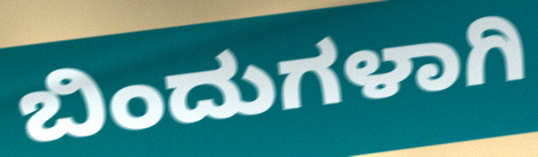
ಬಿಂದುಗಳಾಗಿ